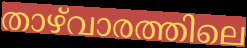
താഴ്‌വാരത്തിലെ